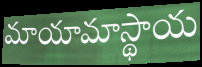
మాయామాస్థాయ